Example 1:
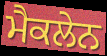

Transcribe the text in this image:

ਮੈਕਲੇਨ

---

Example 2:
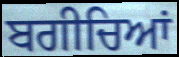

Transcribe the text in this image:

ਬਗੀਚਿਆਂ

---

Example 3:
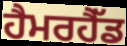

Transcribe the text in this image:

ਹੈਮਰਹੈੱਡ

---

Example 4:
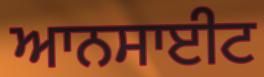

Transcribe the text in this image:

ਆਨਸਾਈਟ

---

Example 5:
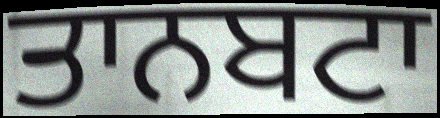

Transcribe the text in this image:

ਤਾਨਬਟਾ